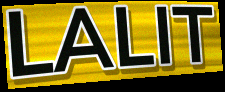
LALIT